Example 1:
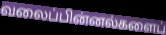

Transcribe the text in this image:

வலைப்பின்னல்களைப்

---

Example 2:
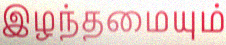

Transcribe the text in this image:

இழந்தமையும்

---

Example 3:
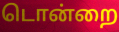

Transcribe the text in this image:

டொன்றை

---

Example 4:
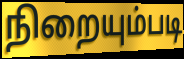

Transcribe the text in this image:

நிறையும்படி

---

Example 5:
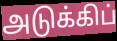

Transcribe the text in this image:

அடுக்கிப்